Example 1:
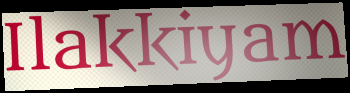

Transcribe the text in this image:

Ilakkiyam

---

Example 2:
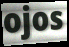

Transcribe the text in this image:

ojos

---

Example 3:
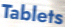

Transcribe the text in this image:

Tablets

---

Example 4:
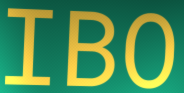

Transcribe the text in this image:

IBO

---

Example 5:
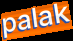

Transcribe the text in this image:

palak